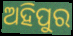
ଅହିପୁର